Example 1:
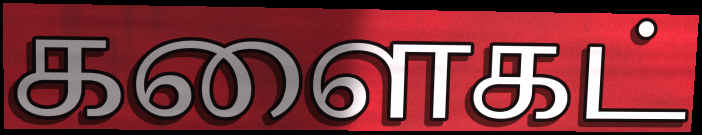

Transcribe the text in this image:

களைகட்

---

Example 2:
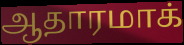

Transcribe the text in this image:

ஆதாரமாக்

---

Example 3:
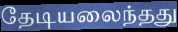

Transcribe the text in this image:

தேடியலைந்தது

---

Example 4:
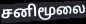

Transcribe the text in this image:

சனிமூலை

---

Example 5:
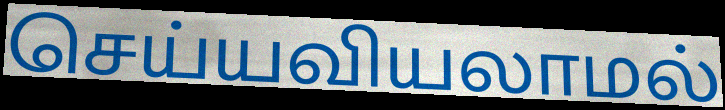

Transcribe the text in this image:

செய்யவியலாமல்